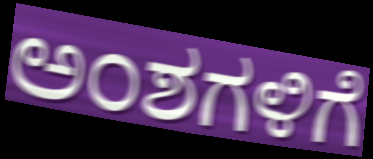
ಅಂಶಗಳಿಗೆ